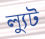
ল্যুট